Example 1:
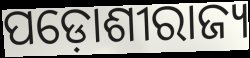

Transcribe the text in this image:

ପଡ଼ୋଶୀରାଜ୍ୟ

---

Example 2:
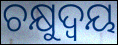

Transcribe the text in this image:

ଚକ୍ଷୁଦ୍ଵୟ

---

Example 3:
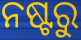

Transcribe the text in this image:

ନଷ୍ଟରୁ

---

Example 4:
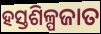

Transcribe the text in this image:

ହସ୍ତଶିଳ୍ପଜାତ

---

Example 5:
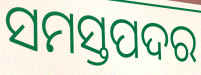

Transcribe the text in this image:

ସମସ୍ତପଦର